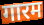
गारम